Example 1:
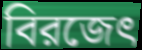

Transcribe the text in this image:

বিরজেৎ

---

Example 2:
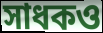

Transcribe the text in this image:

সাধকও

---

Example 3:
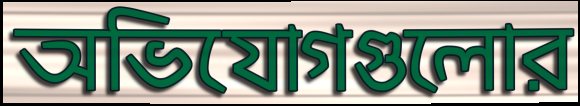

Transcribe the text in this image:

অভিযোগগুলোর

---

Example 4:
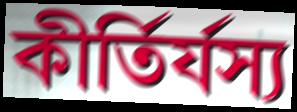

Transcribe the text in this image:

কীর্তির্যস্য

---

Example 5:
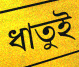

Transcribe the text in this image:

ধাতুই